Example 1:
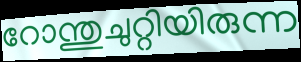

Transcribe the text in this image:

റോന്തുചുറ്റിയിരുന്ന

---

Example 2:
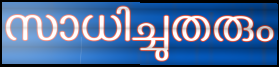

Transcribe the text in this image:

സാധിച്ചുതരും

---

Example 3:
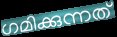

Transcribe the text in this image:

ഗമിക്കുന്നത്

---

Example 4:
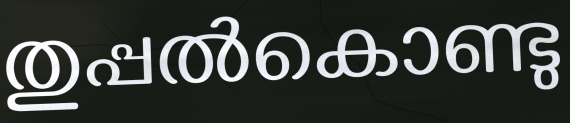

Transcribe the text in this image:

തുപ്പൽകൊണ്ടു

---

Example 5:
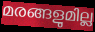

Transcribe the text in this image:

മരങ്ങളുമില്ല